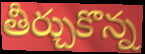
తీర్చుకొన్న